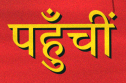
पहुँचीं